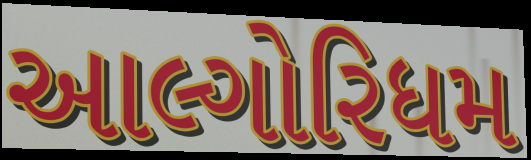
આલ્ગોરિધમ